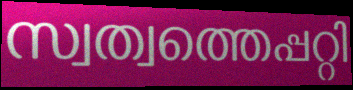
സ്വത്വത്തെപ്പറ്റി